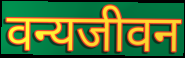
वन्यजीवन